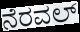
ನೆರವಲ್